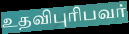
உதவிபுரிபவர்